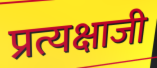
प्रत्यक्षाजी